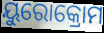
ୟୁରୋକ୍ରୋମ